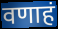
वणाहं